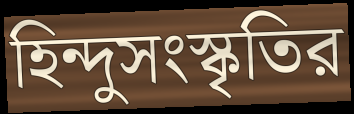
হিন্দুসংস্কৃতির